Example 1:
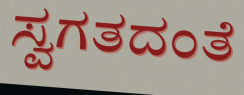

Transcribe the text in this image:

ಸ್ವಗತದಂತೆ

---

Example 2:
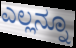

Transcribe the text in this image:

ಎಲ್ಲನ್ನೂ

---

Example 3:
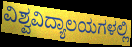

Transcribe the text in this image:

ವಿಶ್ವವಿದ್ಯಾಲಯಗಳಲ್ಲಿ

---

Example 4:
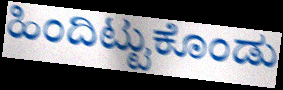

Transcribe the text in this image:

ಹಿಂದಿಟ್ಟುಕೊಂಡು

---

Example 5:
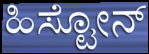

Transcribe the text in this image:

ಹಿಸ್ಟೋನ್